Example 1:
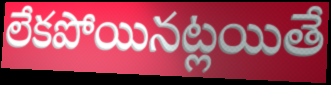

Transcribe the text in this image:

లేకపోయినట్లయితే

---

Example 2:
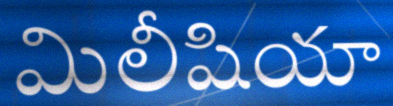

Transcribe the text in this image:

మిలీషియా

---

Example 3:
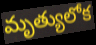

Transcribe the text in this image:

మృత్యులోక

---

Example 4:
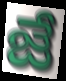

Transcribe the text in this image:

జే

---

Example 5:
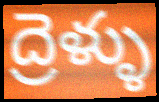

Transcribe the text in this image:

ద్రెళ్ళు